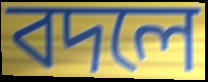
বদলে